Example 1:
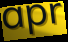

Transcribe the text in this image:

apr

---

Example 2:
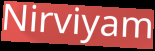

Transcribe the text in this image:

Nirviyam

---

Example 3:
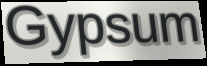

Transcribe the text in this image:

Gypsum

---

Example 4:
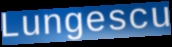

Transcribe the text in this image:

Lungescu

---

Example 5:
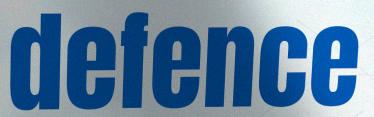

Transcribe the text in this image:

defence